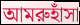
আমরুহাঁসা